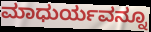
ಮಾಧುರ್ಯವನ್ನೂ